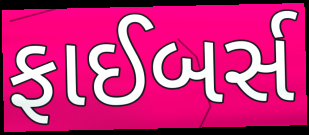
ફાઈબર્સ